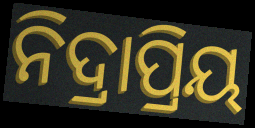
ନିଦ୍ରାପ୍ରିୟ